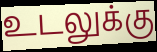
உடலுக்கு